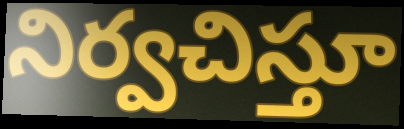
నిర్వచిస్తూ